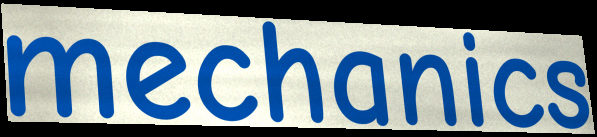
mechanics